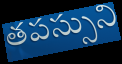
తపస్సుని